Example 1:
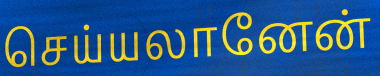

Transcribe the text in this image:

செய்யலானேன்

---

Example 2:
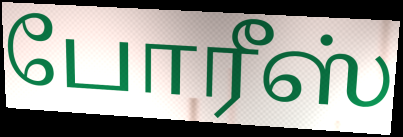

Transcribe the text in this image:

போரீஸ்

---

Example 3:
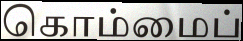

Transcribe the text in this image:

கொம்மைப்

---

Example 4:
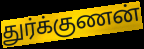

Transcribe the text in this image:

துர்க்குணன்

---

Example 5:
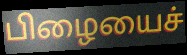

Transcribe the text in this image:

பிழையைச்